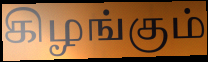
கிழங்கும்